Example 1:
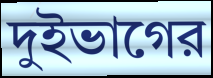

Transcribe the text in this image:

দুইভাগের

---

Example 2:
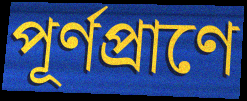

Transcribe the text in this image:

পূর্ণপ্রাণে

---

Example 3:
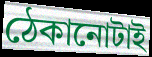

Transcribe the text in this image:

ঠেকানোটাই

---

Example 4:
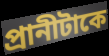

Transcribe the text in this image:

প্রানীটাকে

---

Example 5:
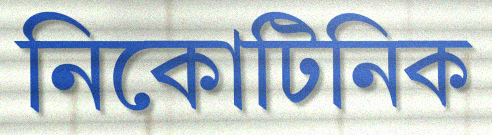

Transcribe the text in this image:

নিকোটিনিক